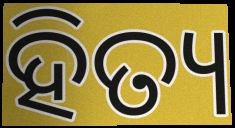
ହିତ୍ୟ